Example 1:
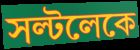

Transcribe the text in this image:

সল্টলেকে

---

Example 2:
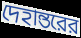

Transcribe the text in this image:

দেহান্তরের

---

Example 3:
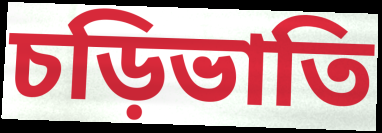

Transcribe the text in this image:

চড়িভাতি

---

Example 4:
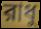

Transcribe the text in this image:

রাধু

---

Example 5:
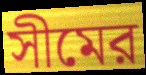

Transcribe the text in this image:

সীমের